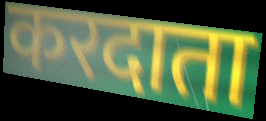
करदाता